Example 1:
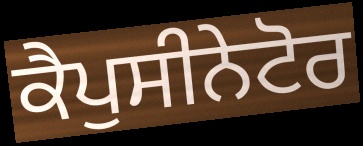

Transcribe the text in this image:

ਕੈਪੁਸੀਨੇਟੋਰ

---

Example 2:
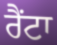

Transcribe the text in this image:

ਰੈਂਟਾ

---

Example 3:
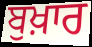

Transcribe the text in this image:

ਬੁਖ਼ਾਰ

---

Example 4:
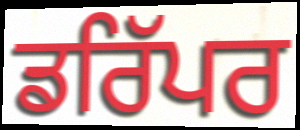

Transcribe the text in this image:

ਡਰਿੱਪਰ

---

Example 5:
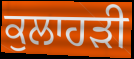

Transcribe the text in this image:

ਕੁਲਾਹੜੀ